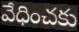
వేధించకు